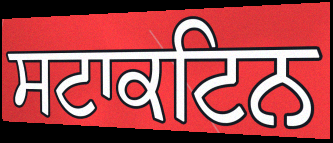
ਸਟਾਕਟਿਨ